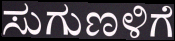
ಸುಗುಣಳಿಗೆ